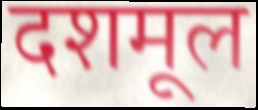
दशमूल